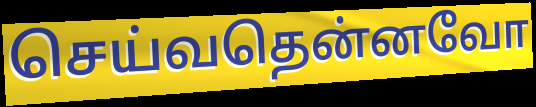
செய்வதென்னவோ